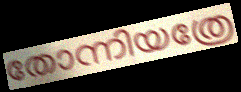
തോന്നിയത്രേ